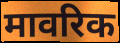
मावरिक